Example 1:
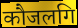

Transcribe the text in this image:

कौजलगि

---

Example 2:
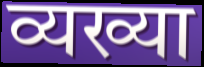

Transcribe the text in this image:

व्यख्या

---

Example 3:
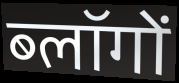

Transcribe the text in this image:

ब्‍लॉगों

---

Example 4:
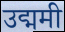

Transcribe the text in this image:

उद्ममी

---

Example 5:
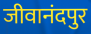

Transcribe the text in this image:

जीवानंदपुर